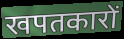
खपतकारों